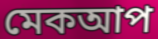
মেকআপ